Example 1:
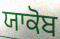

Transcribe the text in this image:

ਯਾਕੋਬ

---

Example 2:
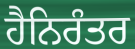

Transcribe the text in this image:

ਹੈਨਿਰੰਤਰ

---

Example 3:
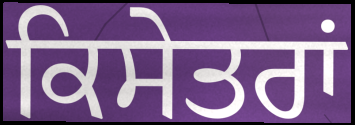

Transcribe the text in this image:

ਕਿਸੇਤਰਾਂ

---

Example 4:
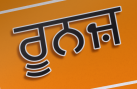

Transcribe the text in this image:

ਰੂਨਜ਼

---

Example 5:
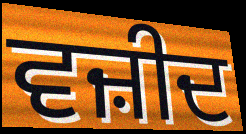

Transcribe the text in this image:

ਵਜ਼ੀਦ